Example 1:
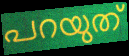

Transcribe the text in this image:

പറയുത്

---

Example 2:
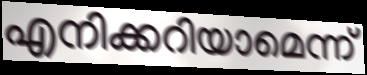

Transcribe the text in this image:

എനിക്കറിയാമെന്ന്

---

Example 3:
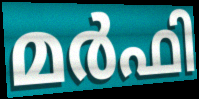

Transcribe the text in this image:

മർഫി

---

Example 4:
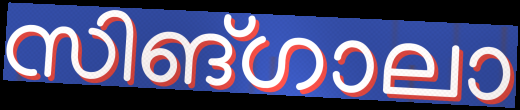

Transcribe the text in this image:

സിങ്ഗാലാ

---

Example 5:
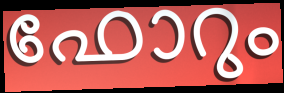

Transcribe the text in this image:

ഫോറും